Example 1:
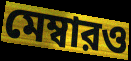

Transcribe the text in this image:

মেম্বারও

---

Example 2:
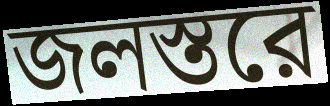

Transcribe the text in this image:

জলস্তরে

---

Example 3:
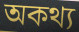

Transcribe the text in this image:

অকথ্য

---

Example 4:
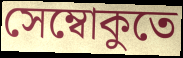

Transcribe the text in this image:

সেম্বোকুতে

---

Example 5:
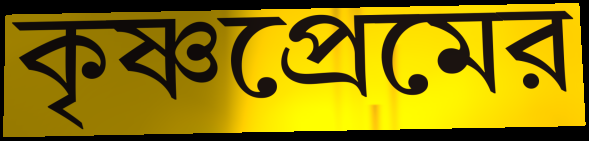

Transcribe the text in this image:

কৃষ্ণপ্রেমের